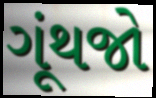
ગૂંથજો